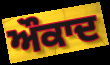
ਔਕਾਦ